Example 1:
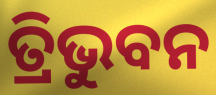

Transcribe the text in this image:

ତ୍ରିଭୁବନ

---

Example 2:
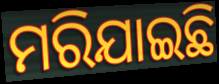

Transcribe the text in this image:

ମରିଯାଇଛି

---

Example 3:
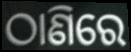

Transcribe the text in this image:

ଠାଣିରେ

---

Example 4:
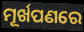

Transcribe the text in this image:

ମୂର୍ଖପଣରେ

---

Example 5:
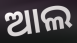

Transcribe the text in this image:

ଆଲ